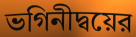
ভগিনীদ্বয়ের